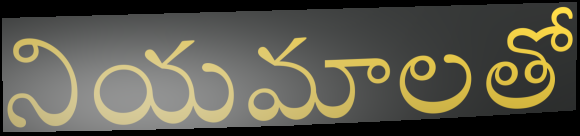
నియమాలతో